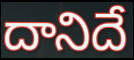
దానిదే